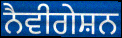
ਨੈਵੀਗੇਸ਼ਨ